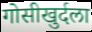
गोसीखुर्दला